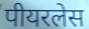
पीयरलेस